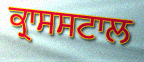
ਕ੍ਰਾਸਸਟਾਲ